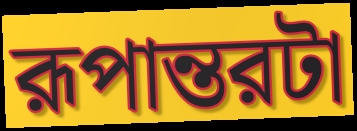
রূপান্তরটা